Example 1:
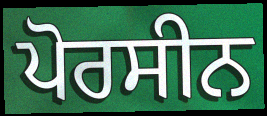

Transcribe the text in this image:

ਪੋਰਸੀਨ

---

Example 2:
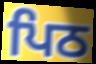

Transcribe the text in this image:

ਪਿਠ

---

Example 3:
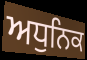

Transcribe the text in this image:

ਅਧੁਨਿਕ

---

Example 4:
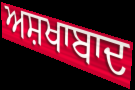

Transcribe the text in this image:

ਅਸ਼ਖਾਬਾਦ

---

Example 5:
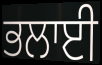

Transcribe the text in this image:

ਭਲਾਈ